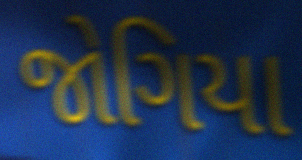
જોગિયા